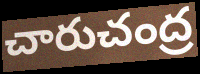
చారుచంద్ర